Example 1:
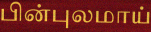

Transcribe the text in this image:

பின்புலமாய்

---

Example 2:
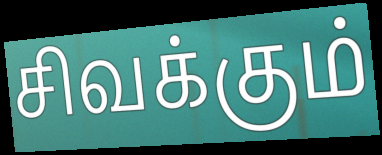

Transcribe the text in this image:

சிவக்கும்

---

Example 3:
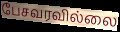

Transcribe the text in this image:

பேசவரவில்லை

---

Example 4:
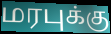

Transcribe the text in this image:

மரபுக்கு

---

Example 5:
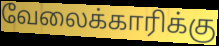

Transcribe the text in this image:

வேலைக்காரிக்கு